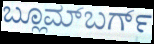
ಬ್ಲೂಮ್‌ಬರ್ಗ್